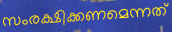
സംരക്ഷിക്കണമെന്നത്